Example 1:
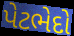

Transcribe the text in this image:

પેટભેદો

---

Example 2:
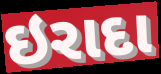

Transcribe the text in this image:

ઇરાદા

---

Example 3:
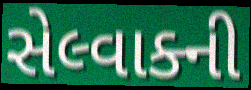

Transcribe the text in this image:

સેલ્વાક્ની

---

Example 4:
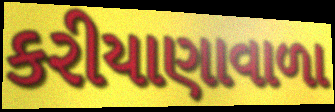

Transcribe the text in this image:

કરીયાણાવાળા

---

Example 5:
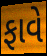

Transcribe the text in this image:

ફાવે